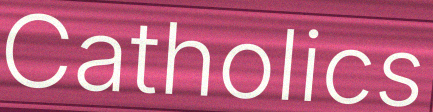
Catholics